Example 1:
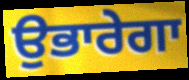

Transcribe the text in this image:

ਉਭਾਰੇਗਾ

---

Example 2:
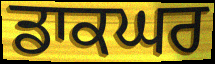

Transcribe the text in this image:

ਡਾਕਘਰ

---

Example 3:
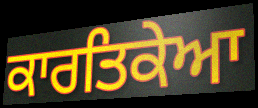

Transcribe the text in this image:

ਕਾਰਤਿਕੇਆ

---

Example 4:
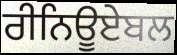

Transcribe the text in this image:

ਰੀਨਿਊਏਬਲ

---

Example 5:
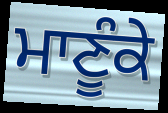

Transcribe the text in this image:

ਮਾਣੂੰਕੇ